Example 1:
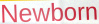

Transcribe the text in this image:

Newborn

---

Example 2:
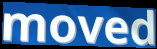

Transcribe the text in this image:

moved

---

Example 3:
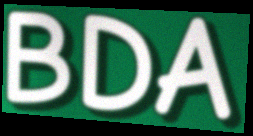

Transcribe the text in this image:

BDA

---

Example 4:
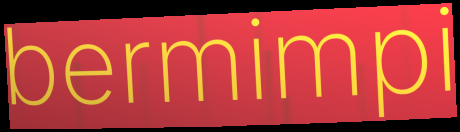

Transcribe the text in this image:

bermimpi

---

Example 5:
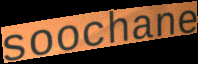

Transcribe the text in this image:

soochane